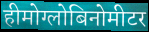
हीमोग्लोबिनोमीटर